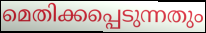
മെതിക്കപ്പെടുന്നതും